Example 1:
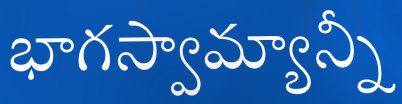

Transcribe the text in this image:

భాగస్వామ్యాన్నీ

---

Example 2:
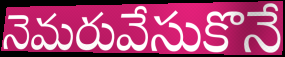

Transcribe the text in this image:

నెమరువేసుకొనే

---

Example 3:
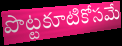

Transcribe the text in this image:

పొట్టకూటికోసమే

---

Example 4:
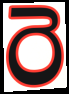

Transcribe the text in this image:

రె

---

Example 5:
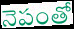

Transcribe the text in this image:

నెపంతో